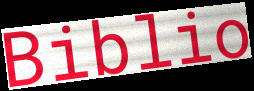
Biblio